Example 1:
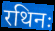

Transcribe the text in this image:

रथिनः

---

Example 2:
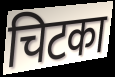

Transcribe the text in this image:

चिटका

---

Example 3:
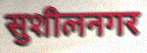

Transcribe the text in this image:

सुशीलनगर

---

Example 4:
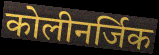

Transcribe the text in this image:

कोलीनर्जिक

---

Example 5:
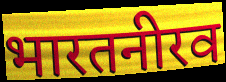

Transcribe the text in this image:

भारतनीरव